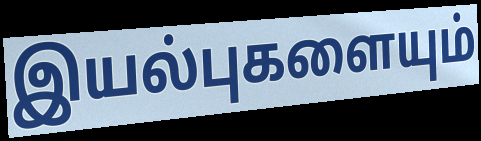
இயல்புகளையும்